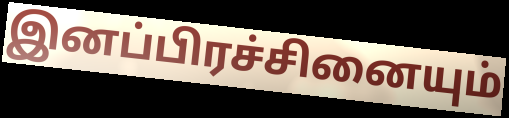
இனப்பிரச்சினையும்